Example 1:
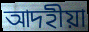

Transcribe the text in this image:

আদহীয়া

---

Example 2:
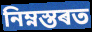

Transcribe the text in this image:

নিম্নস্তৰত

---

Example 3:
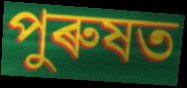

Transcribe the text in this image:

পুৰুষত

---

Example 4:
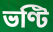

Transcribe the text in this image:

ভণ্টি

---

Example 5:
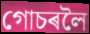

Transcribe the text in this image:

গোচৰলৈ